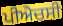
ਪੀਐਚਸੀ